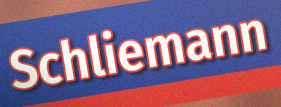
Schliemann